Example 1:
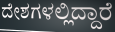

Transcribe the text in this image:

ದೇಶಗಳಲ್ಲಿದ್ದಾರೆ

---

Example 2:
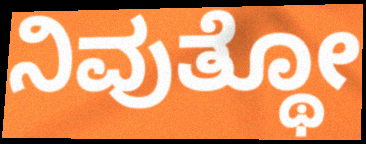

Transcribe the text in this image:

ನಿವುತ್ಥೋ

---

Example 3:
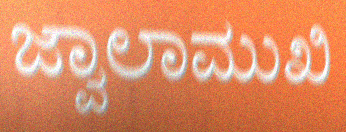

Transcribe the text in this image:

ಜ್ವಾಲಾಮುಖಿ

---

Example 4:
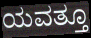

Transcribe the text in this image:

ಯವತ್ತೂ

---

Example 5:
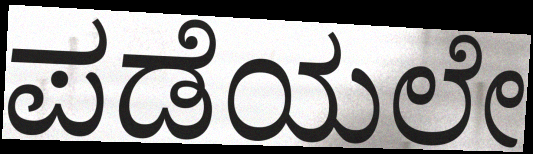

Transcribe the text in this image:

ಪಡೆಯಲೇ